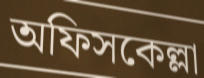
অফিসকেল্লা